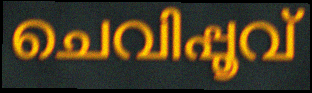
ചെവിപ്പൂവ്